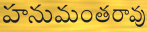
హనుమంతరావు